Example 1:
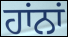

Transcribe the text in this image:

ਹਾਂਨਾਂ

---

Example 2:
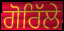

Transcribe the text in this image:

ਗੋਰਿੱਲੇ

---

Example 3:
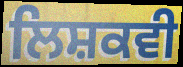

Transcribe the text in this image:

ਲਿਸ਼ਕਵੀ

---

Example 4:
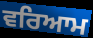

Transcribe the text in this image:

ਵਰਿਆਮ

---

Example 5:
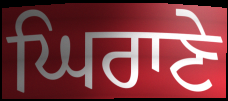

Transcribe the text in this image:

ਘਿਰਾਣੇ